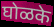
घोळके